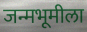
जन्मभूमीला